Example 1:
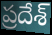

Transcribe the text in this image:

ప్రదేశ్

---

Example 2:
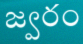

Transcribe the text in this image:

జ్వరం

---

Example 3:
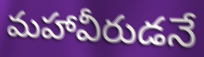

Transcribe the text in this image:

మహావీరుడనే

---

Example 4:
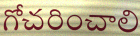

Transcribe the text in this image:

గోచరించాలి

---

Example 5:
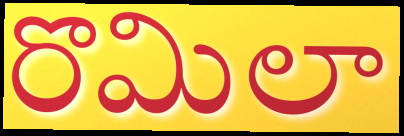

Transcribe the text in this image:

రొమిలా